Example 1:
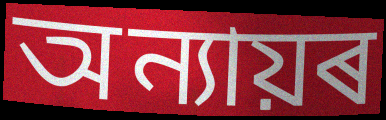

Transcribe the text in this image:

অন্যায়ৰ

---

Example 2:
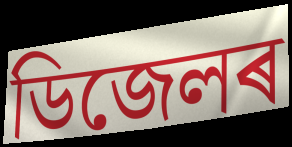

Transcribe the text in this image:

ডিজেলৰ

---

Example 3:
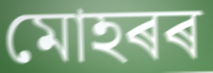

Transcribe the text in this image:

মোহৰৰ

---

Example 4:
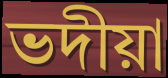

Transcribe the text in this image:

ভদীয়া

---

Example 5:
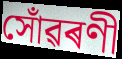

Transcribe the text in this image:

সোঁৱৰণী